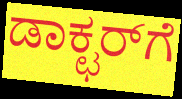
ಡಾಕ್ಟರ್‌ಗೆ